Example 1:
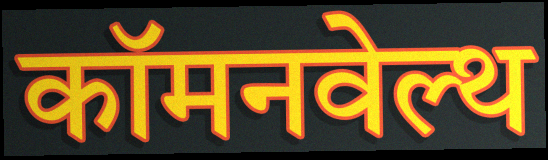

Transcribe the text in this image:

कॉमनवेल्थ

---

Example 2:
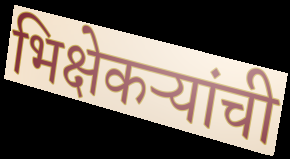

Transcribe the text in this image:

भिक्षेकऱ्यांची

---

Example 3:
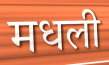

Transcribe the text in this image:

मधली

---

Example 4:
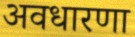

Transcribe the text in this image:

अवधारणा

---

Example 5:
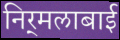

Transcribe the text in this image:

निर्मलाबाई